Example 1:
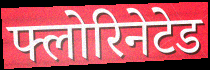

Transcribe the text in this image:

फ्लोरिनेटेड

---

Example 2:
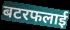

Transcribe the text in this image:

बटरफलाई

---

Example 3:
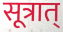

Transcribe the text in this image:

सूत्रात्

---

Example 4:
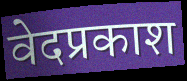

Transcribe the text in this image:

वेदप्रकाश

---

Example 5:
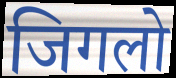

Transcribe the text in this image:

जिगलो